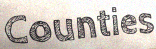
Counties